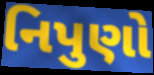
નિપુણો